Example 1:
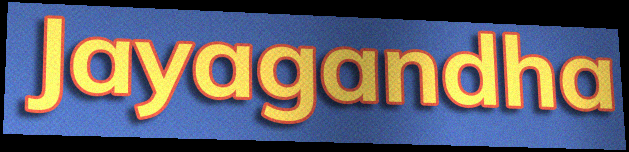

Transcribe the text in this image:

Jayagandha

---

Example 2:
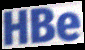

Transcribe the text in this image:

HBe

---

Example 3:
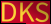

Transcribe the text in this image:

DKS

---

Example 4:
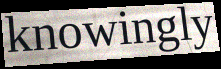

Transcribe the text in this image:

knowingly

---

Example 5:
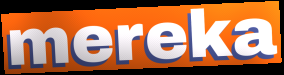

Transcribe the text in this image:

mereka